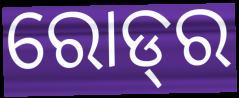
ରୋଡ୍‌ର